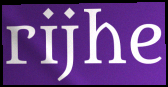
rijhe